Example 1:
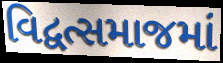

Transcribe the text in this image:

વિદ્વત્સમાજમાં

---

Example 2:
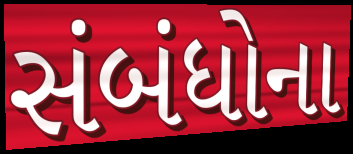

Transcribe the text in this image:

સંબંધોના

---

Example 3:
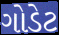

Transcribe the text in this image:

ગોડેટ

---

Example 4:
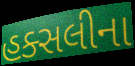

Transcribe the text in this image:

હક્સલીના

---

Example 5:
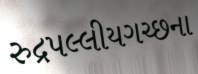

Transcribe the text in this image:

રુદ્રપલ્લીયગચ્છના